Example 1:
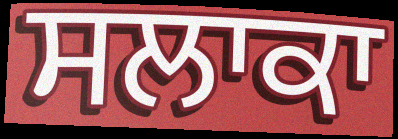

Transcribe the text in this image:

ਸਲਾਕਾ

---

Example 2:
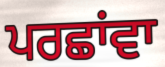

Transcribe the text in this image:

ਪਰਛਾਂਵਾ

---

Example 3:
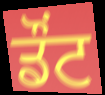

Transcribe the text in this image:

ਡੌਂਟ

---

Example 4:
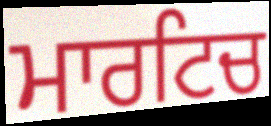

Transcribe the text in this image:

ਮਾਰਟਿਚ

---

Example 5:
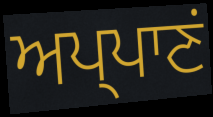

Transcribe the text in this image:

ਅਪ੍ਪਾਣਂ